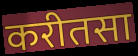
करीतसा